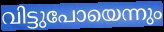
വിട്ടുപോയെന്നും